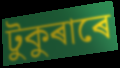
টুকুৰাৰে